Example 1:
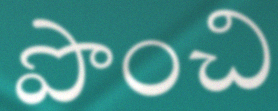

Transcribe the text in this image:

పొంచి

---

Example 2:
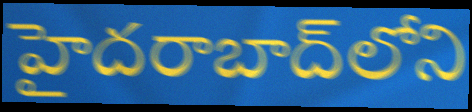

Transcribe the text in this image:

హైదరాబాద్‌లోని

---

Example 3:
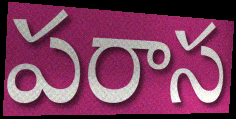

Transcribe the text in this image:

పరాస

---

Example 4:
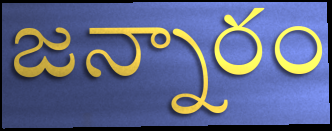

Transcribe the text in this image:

జన్నారం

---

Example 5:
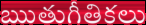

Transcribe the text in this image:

ఋతుగీతికలు